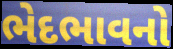
ભેદભાવનો